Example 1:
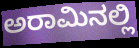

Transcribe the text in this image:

ಅರಾಮಿನಲ್ಲಿ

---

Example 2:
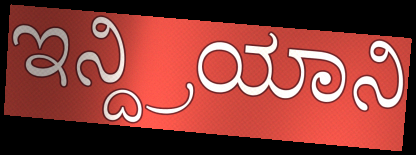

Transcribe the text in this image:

ಇನ್ದ್ರಿಯಾನಿ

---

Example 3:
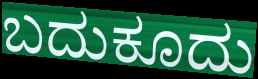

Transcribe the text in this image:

ಬದುಕೂದು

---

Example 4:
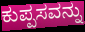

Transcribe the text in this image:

ಕುಪ್ಪಸವನ್ನು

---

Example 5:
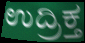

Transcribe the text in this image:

ಉದ್ರಿಕ್ತ